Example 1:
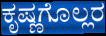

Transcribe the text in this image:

ಕೃಷ್ಣಗೊಲ್ಲರ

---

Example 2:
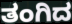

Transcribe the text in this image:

ತಂಗಿದ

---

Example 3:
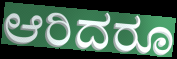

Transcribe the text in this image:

ಆರಿದರೂ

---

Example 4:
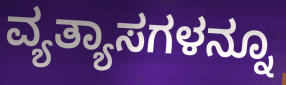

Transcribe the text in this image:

ವ್ಯತ್ಯಾಸಗಳನ್ನೂ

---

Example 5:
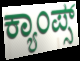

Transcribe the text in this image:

ಕ್ಯಾಂಪ್ಸ್